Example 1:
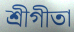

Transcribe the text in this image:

শ্রীগীতা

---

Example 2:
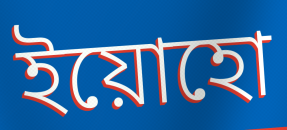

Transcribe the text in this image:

ইয়োহো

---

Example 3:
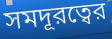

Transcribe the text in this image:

সমদূরত্বের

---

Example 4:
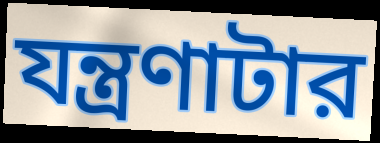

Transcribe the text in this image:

যন্ত্রণাটার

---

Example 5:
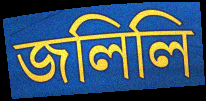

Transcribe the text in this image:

জলিলি